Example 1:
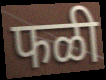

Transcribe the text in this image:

फळी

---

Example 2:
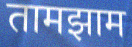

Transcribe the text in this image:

तामझाम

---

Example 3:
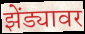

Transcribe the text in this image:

झेंड्यावर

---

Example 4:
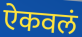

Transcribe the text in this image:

ऐकवलं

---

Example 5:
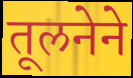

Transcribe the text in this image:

तूलनेने